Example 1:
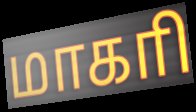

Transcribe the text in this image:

மாகரி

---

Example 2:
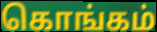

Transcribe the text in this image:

கொங்கம்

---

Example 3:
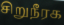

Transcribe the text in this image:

சிறுநீரக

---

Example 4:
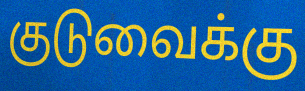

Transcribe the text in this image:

குடுவைக்கு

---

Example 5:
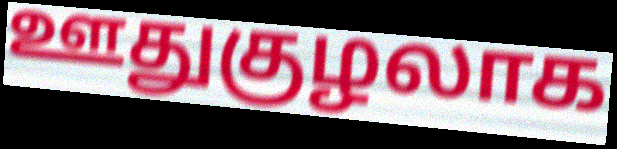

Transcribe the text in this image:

ஊதுகுழலாக